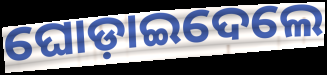
ଘୋଡ଼ାଇଦେଲେ